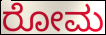
ರೋಮ